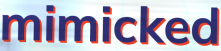
mimicked